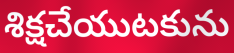
శిక్షచేయుటకును